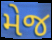
મેજ